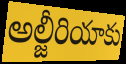
అల్జీరియాకు